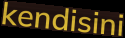
kendisini